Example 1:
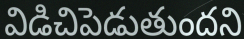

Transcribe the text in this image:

విడిచిపెడుతుందని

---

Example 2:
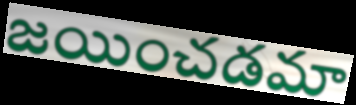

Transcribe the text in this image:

జయించడమా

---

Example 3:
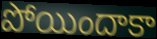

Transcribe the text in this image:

పోయిందాకా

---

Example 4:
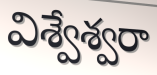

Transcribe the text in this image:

విశ్వేశ్వరా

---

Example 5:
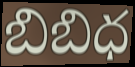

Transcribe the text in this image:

బిబిధ